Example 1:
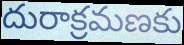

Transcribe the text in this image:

దురాక్రమణకు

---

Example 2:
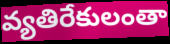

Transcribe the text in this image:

వ్యతిరేకులంతా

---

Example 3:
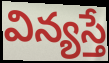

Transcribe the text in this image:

విన్యస్తే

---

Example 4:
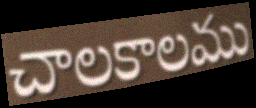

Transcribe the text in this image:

చాలకాలము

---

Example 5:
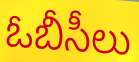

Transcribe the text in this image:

ఓబీసీలు